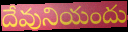
దేవునియందు